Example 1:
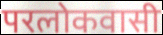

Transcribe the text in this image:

परलोकवासी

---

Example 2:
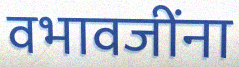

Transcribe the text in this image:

वभावजींना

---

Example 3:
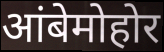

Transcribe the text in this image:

आंबेमोहोर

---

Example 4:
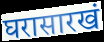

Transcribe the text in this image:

घरासारखं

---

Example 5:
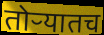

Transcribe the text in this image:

तोऱ्यातच